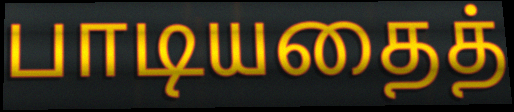
பாடியதைத்